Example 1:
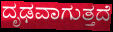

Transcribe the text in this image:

ದೃಢವಾಗುತ್ತದೆ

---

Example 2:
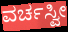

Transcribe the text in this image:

ವರ್ಚಸ್ವೀ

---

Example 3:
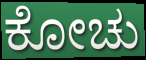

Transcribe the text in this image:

ಕೋಚು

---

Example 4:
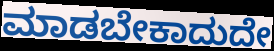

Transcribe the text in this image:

ಮಾಡಬೇಕಾದುದೇ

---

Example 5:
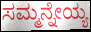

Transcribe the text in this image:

ಸಮ್ಮನ್ನೇಯ್ಯ